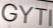
GYTI